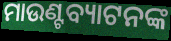
ମାଉଣ୍ଟବ୍ୟାଟନଙ୍କ